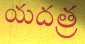
యదత్ర